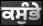
ਕਸੁੰਭੇ